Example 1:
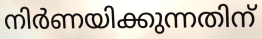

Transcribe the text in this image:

നിർണയിക്കുന്നതിന്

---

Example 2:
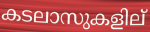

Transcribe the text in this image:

കടലാസുകളില്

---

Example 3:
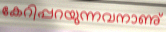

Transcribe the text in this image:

കേറിപ്പറയുന്നവനാണു്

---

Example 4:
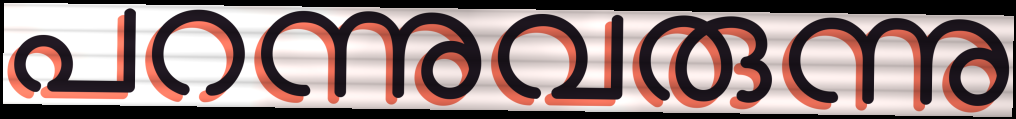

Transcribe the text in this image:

പറന്നുവരുന്നു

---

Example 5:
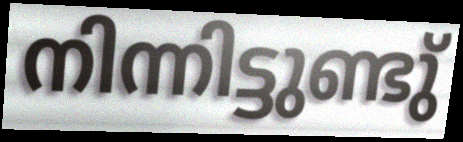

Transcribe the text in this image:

നിന്നിട്ടുണ്ടു്